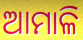
ଆମାଳି